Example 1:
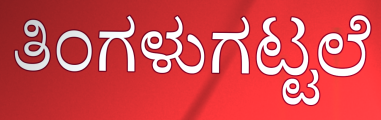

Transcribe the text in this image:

ತಿಂಗಳುಗಟ್ಟಲೆ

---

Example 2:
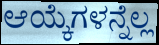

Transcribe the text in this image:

ಆಯ್ಕೆಗಳನ್ನೆಲ್ಲ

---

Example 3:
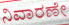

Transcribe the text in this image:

ನಿವಾರಣೇ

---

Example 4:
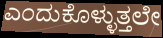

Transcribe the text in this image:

ಎಂದುಕೊಳ್ಳುತ್ತಲೇ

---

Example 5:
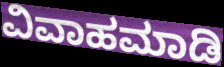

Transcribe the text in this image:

ವಿವಾಹಮಾಡಿ